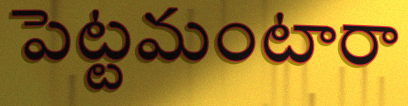
పెట్టమంటారా